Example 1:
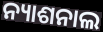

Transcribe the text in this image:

ନ୍ୟାଶନାଲ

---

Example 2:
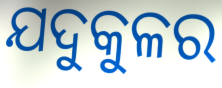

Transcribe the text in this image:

ଯଦୁକୁଳର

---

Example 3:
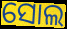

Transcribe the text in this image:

ସୋଲ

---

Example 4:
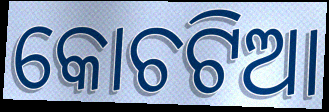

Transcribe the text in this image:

କୋଚଟିଆ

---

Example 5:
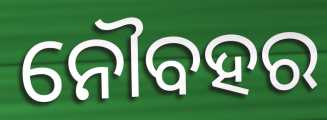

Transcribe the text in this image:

ନୌବହର